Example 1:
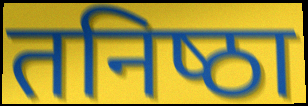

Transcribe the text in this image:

तनिष्‍ठा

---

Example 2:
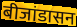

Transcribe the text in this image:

बीजांडासन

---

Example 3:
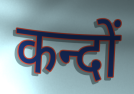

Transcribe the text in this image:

कन्दों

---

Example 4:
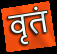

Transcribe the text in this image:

वृतं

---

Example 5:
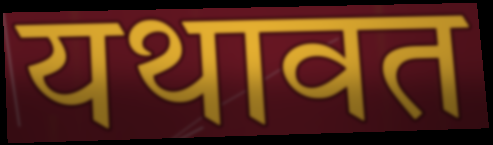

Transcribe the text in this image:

यथावत